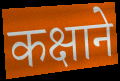
कक्षाने